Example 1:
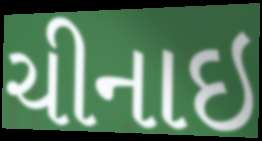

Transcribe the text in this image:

ચીનાઇ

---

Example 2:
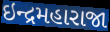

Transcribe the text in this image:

ઇન્દ્રમહારાજા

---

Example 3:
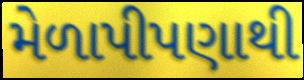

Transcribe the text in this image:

મેળાપીપણાથી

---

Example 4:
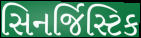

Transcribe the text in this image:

સિનર્જિસ્ટિક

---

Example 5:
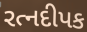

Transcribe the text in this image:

રત્નદીપક